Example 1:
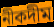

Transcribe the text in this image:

নীকদীম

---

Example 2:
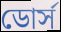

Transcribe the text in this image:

ডোর্স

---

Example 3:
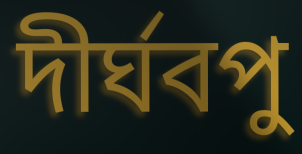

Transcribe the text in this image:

দীর্ঘবপু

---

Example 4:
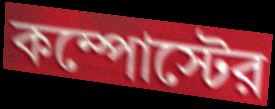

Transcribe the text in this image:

কম্পোস্টের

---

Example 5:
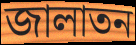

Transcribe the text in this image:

জালাতন